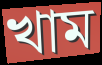
খাম